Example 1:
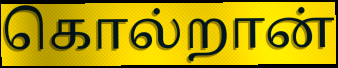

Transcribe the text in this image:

கொல்றான்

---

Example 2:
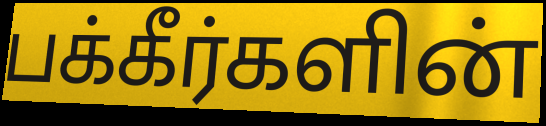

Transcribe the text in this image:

பக்கீர்களின்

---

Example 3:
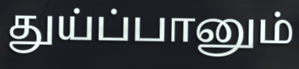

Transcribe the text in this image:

துய்ப்பானும்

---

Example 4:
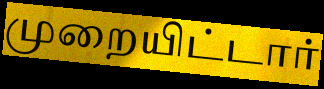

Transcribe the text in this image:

முறையிட்டார்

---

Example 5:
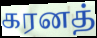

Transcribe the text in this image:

கரனத்